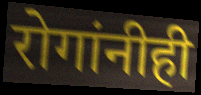
रोगांनीही